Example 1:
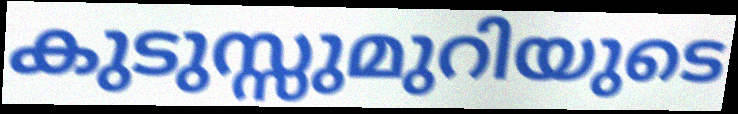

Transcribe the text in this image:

കുടുസ്സുമുറിയുടെ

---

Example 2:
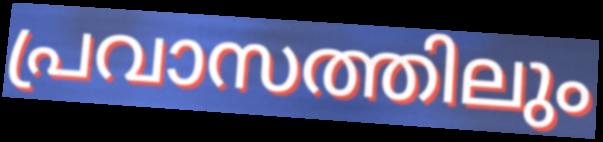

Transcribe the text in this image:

പ്രവാസത്തിലും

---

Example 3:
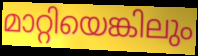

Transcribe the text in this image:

മാറ്റിയെങ്കിലും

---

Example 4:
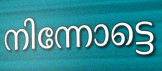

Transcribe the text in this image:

നിന്നോട്ടെ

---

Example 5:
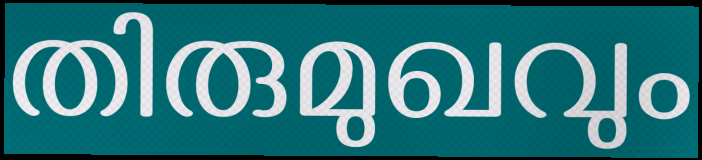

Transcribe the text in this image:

തിരുമുഖവും